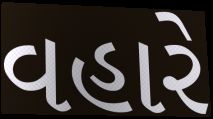
વહારે